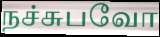
நச்சுபவோ